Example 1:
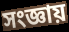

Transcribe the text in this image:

সংজ্ঞায়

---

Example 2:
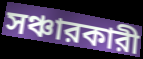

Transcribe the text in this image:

সঞ্চারকারী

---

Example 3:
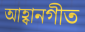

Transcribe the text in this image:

আহ্বানগীত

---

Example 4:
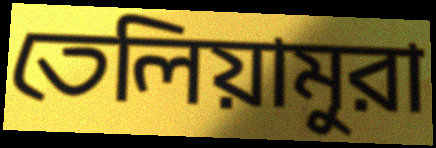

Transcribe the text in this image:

তেলিয়ামুরা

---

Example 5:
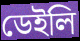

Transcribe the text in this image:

ডেইলি